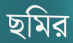
ছমির